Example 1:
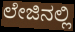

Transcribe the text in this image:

ಲೇಜಿನಲ್ಲಿ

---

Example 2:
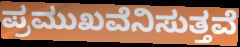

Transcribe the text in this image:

ಪ್ರಮುಖವೆನಿಸುತ್ತವೆ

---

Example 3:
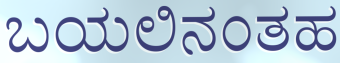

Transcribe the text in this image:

ಬಯಲಿನಂತಹ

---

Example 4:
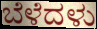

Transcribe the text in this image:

ಬೆಳೆದಳು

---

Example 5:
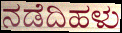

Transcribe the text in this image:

ನಡೆದಿಹಳು